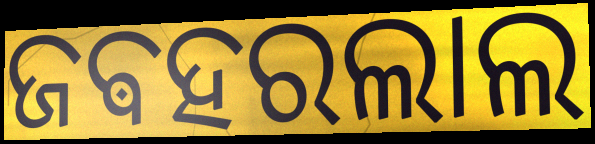
ଜଵହରଲାଲ